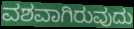
ವಶವಾಗಿರುವುದು